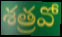
శత్రవో